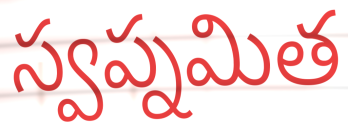
స్వప్నమిత